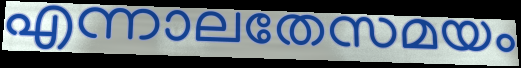
എന്നാലതേസമയം